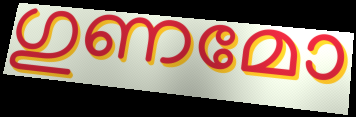
ഗുണമോ